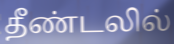
தீண்டலில்